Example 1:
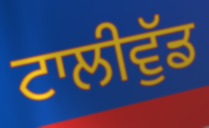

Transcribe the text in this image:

ਟਾਲੀਵੁੱਡ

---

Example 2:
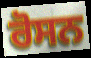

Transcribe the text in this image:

ਰੋਸਨ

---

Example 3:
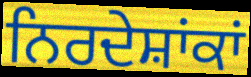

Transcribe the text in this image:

ਨਿਰਦੇਸ਼ਾਂਕਾਂ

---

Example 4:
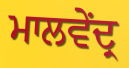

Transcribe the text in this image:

ਮਾਲਵੇਂਦ੍ਰ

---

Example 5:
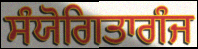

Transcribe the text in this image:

ਸੰਯੋਗਿਤਾਗੰਜ